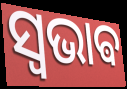
ସ୍ଵଭାଵ